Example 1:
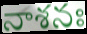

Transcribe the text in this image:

నాశనః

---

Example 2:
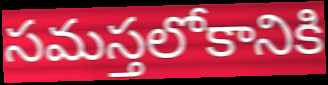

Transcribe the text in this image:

సమస్తలోకానికి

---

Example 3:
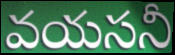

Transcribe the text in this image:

వయసనీ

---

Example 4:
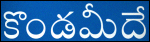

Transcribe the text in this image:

కొండమీదే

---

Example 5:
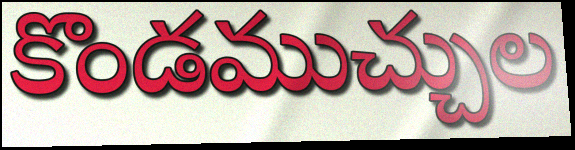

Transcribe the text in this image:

కొండముచ్చుల